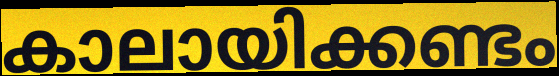
കാലായിക്കണ്ടം